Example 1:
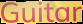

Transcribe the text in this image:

Guitar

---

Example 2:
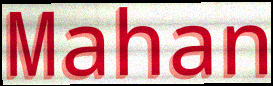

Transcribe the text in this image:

Mahan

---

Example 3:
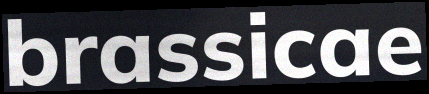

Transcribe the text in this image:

brassicae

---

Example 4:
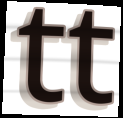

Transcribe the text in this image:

tt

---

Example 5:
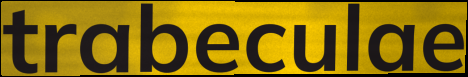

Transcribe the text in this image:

trabeculae